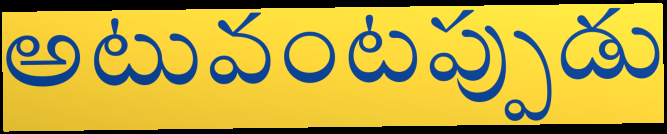
అటువంటప్పుడు